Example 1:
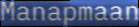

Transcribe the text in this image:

Manapmaan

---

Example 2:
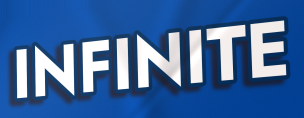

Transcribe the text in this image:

INFINITE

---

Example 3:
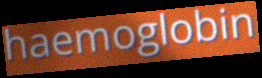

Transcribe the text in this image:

haemoglobin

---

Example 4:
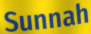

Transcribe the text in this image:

Sunnah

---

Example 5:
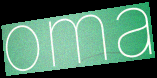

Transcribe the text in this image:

oma